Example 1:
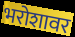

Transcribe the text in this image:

भरोशावर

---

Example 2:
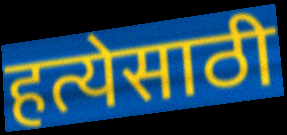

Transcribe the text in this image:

हत्येसाठी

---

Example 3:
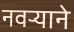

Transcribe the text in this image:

नवऱ्याने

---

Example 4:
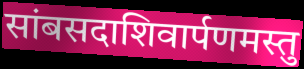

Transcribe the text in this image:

सांबसदाशिवार्पणमस्तु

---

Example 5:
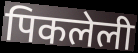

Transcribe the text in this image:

पिकलेली